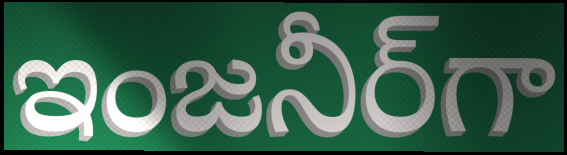
ఇంజనీర్‌గా